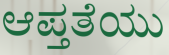
ಆಪ್ತತೆಯು